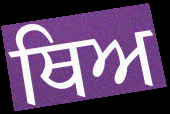
ਥਿਅ